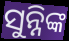
ସୁନ୍ନିଙ୍କ